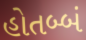
હોતબ્બં